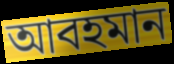
আবহমান